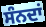
ਸੰਨਦਾਂ